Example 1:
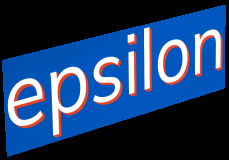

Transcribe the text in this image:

epsilon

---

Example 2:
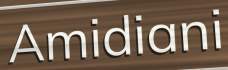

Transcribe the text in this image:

Amidiani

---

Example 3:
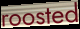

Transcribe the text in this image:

roosted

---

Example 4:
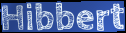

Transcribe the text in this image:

Hibbert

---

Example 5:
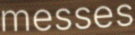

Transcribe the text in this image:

messes